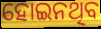
ହୋଇନଥିବ